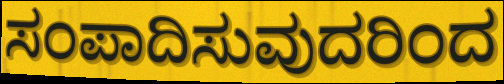
ಸಂಪಾದಿಸುವುದರಿಂದ